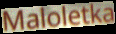
Maloletka